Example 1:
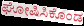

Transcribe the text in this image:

ಘೋಷಿಸಿಕೊಂಡ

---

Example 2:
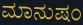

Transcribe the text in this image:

ಮಾನುಷಂ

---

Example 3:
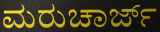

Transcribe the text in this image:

ಮರುಚಾರ್ಜ್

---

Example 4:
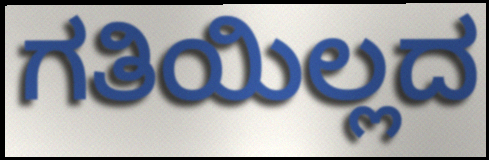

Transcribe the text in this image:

ಗತಿಯಿಲ್ಲದ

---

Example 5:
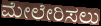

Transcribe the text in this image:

ಮೇಲೇರಿಸಲು